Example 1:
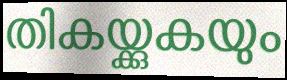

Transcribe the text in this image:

തികയ്ക്കുകയും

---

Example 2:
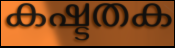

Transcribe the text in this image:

കഷ്ടതക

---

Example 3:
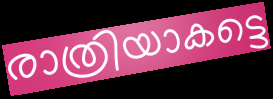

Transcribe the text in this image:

രാത്രിയാകട്ടെ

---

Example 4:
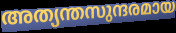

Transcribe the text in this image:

അത്യന്തസുന്ദരമായ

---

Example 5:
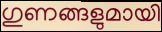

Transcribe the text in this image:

ഗുണങ്ങളുമായി